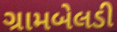
ગ્રામબેલડી